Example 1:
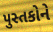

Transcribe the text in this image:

પુસ્તકોને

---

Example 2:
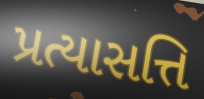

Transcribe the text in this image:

પ્રત્યાસત્તિ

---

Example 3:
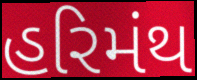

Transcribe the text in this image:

હરિમંથ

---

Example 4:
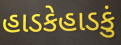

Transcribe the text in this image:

હાડકેહાડકું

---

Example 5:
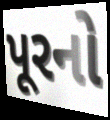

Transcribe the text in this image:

પૂરનો